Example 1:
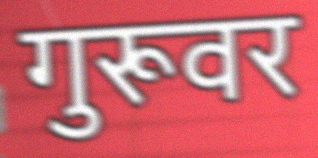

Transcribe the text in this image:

गुरूवर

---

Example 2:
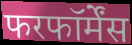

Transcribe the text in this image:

फरफॉर्मेंस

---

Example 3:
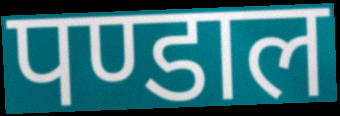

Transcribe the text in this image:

पण्डाल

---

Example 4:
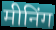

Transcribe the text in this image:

मीनिंग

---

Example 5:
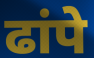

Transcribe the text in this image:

ढांपे